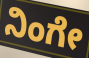
ನಿಂಗೇ